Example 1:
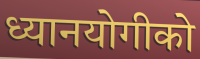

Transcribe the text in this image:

ध्यानयोगीको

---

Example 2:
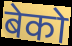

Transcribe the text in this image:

बेको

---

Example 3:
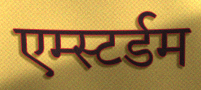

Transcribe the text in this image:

एम्स्टर्डम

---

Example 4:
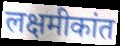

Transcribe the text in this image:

लक्षमीकांत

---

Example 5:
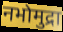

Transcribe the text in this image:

नभोमुद्रा